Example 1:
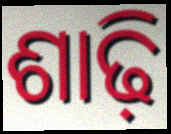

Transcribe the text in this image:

ଶାଢ଼ି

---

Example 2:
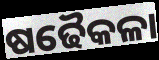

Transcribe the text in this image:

ଷଢୈକଳା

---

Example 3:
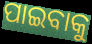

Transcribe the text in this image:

ପାଇବାକୁ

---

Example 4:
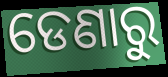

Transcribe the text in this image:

ଡେଣାରୁ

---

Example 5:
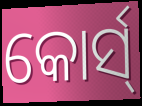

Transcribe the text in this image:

କୋର୍ସ୍